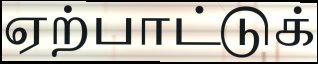
ஏற்பாட்டுக்